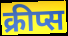
क्रीप्स